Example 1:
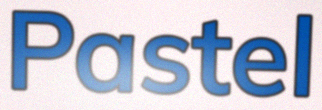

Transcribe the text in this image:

Pastel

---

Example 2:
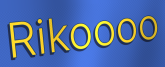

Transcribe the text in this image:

Rikoooo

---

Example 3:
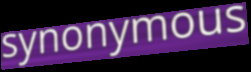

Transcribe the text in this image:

synonymous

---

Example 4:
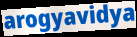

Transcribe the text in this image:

arogyavidya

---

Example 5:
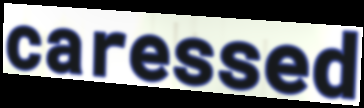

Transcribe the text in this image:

caressed